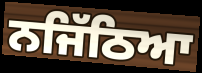
ਨਜਿੱਠਿਆ